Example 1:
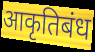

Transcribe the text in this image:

आकृतिबंध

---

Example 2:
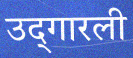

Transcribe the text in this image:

उद्‌गारली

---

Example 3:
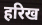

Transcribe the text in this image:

हरिख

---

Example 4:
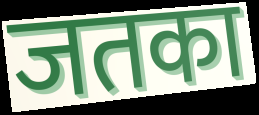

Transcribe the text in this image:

जतका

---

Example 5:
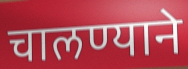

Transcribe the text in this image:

चालण्याने